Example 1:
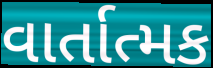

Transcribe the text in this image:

વાર્તાત્મક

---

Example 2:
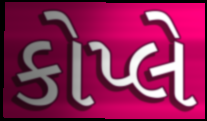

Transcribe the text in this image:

કોપ્લે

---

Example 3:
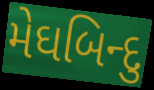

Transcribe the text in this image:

મેઘબિન્દુ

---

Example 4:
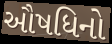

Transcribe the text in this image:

ઔષધિનો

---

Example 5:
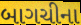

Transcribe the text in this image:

બાગચીના